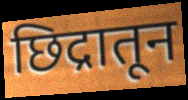
छिद्रातून